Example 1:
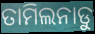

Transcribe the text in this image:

ତାମିଲନାଡୁ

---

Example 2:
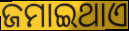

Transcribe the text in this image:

ଜମାଇଥାଏ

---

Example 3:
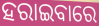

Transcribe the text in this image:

ହରାଇବାରେ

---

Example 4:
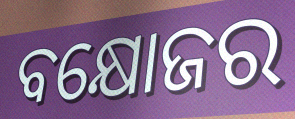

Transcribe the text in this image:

ବକ୍ଷୋଜର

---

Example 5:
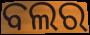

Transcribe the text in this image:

ବଲର